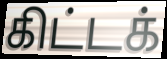
கிட்டக்